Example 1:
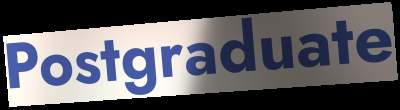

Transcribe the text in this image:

Postgraduate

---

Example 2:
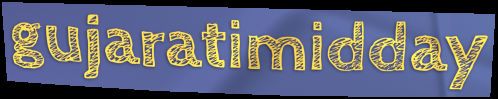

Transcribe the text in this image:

gujaratimidday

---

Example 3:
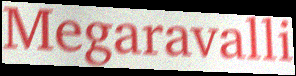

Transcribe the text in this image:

Megaravalli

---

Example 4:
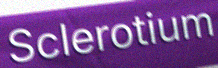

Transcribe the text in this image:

Sclerotium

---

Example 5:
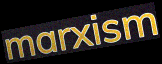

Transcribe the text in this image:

marxism